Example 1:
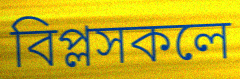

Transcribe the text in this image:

বিপ্লসকলে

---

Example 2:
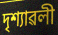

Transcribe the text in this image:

দৃশ্যাৱলী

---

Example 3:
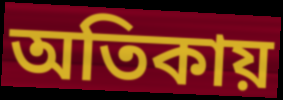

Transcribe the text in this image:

অতিকায়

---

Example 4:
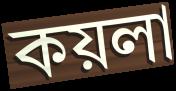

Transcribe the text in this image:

কয়লা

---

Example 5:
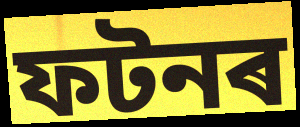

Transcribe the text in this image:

ফটনৰ